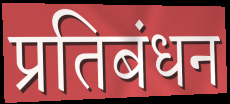
प्रतिबंधन